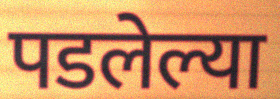
पडलेल्या